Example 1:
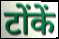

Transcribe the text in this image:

टोंकें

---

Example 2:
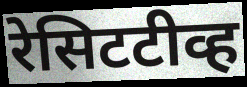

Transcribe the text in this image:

रेसिटटीव्ह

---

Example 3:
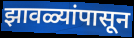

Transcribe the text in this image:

झावळ्यांपासून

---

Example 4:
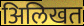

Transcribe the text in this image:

अिलिखत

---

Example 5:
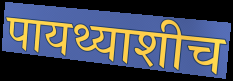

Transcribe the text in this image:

पायथ्याशीच